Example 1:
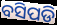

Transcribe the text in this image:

ବସିପଡି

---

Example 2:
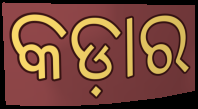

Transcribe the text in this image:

କଡ଼ାର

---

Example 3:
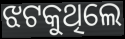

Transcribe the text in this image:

ଝଟକୁଥିଲେ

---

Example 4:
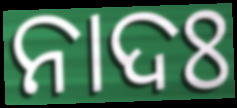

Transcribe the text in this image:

ନାଦଃ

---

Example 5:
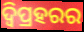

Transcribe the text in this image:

ଦ୍ୱିପ୍ରହରର